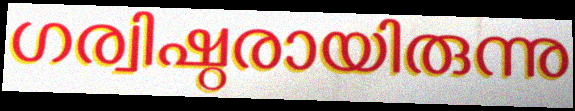
ഗര്വിഷ്ഠരായിരുന്നു